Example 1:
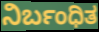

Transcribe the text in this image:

ನಿರ್ಬಂಧಿತ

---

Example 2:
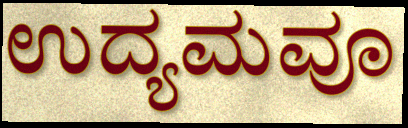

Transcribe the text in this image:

ಉದ್ಯಮವೂ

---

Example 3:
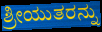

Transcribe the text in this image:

ಶ್ರೀಯುತರನ್ನು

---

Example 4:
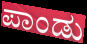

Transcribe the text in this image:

ಪಾಂಡು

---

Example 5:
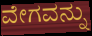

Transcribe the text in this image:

ವೇಗವನ್ನು